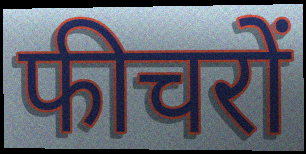
फीचरों